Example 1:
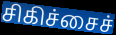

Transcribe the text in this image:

சிகிச்சைச்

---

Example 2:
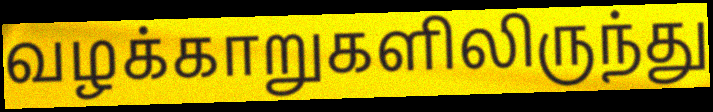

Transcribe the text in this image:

வழக்காறுகளிலிருந்து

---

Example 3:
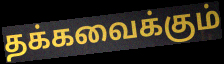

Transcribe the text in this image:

தக்கவைக்கும்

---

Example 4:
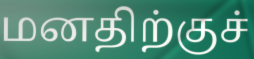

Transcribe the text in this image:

மனதிற்குச்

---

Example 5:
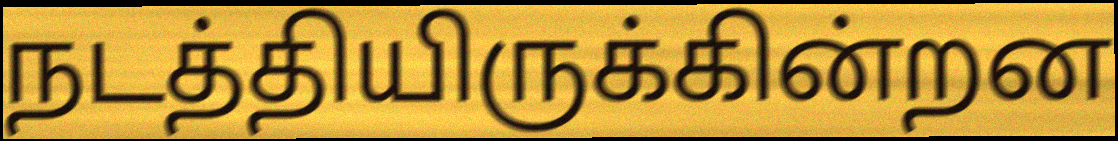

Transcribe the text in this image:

நடத்தியிருக்கின்றன